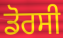
ਡੋਰਸੀ